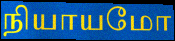
நியாயமோ